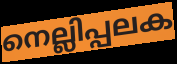
നെല്ലിപ്പലക